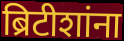
ब्रिटीशांना